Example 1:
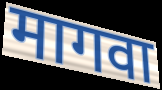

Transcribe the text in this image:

मागवा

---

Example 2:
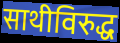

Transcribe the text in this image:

साथीविरुद्ध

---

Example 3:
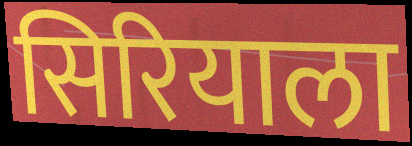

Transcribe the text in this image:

सिरियाला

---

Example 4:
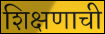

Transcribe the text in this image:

शिक्षणाची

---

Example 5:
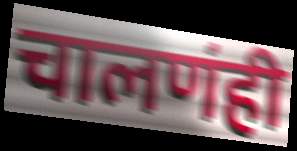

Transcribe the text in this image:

चालणंही